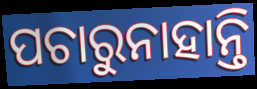
ପଚାରୁନାହାନ୍ତି